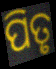
ପିତୃ